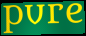
pure